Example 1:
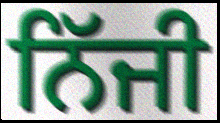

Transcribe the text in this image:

ਨਿੱਜੀ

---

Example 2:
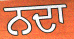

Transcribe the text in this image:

ਨਦਾ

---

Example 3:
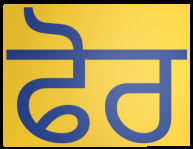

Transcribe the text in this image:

ਫੋਰ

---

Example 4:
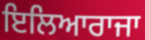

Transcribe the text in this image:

ਇਲਿਆਰਾਜਾ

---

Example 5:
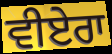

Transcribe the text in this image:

ਵੀਏਰਾ